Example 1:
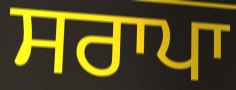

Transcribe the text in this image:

ਸਰਾਪਾ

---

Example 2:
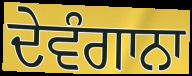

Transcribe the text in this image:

ਦੇਵੰਗਾਨਾ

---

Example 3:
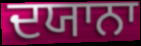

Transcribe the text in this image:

ਦਯਾਨਾ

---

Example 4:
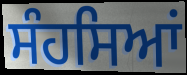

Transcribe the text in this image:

ਸੰਹਸਿਆਂ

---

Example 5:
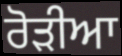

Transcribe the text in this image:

ਰੋੜੀਆ